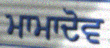
ਮਾਮਾਦੋਵ